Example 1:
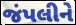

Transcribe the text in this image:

જંપલીને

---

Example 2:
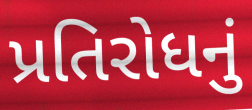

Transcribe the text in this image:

પ્રતિરોધનું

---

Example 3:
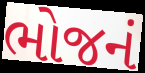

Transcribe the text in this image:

ભોજનં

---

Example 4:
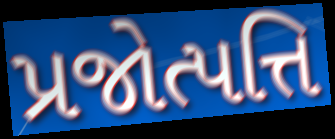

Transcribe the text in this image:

પ્રજોત્પત્તિ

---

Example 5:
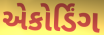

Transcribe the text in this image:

એકોર્ડિંગ